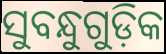
ସୁବନ୍ଧୁଗୁଡ଼ିକ